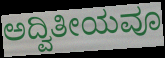
ಅದ್ವಿತೀಯವೂ